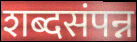
शब्दसंपन्न